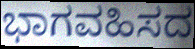
ಭಾಗವಹಿಸದ